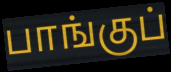
பாங்குப்